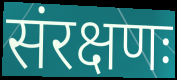
संरक्षणः